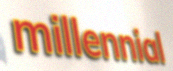
millennial